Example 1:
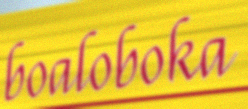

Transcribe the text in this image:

boaloboka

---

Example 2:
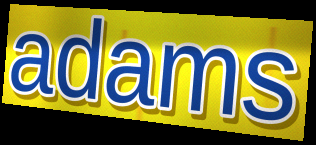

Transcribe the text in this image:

adams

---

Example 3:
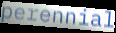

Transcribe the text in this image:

perennial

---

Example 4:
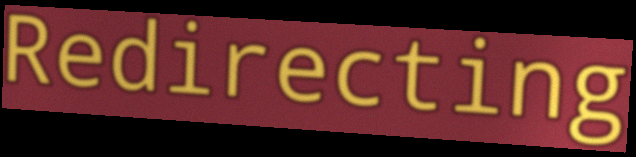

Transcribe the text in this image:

Redirecting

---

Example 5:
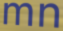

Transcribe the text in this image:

mn